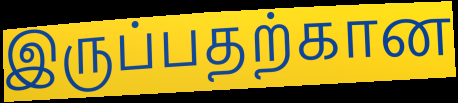
இருப்பதற்கான